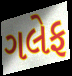
ગલેફ